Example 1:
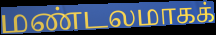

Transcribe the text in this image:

மண்டலமாகக்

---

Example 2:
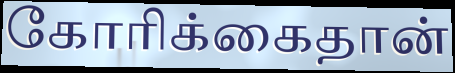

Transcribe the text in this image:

கோரிக்கைதான்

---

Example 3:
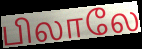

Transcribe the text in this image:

பிலாலே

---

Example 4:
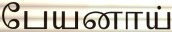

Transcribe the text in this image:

பேயனாய்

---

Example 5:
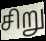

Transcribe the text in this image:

சிறு